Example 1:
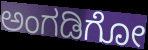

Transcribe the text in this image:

ಅಂಗಡಿಗೋ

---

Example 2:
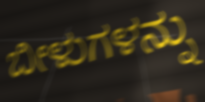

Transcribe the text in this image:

ಬೀಳುಗಳನ್ನು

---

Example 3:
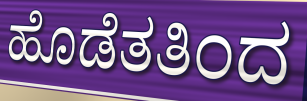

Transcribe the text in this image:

ಹೊಡೆತತಿಂದ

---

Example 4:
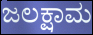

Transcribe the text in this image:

ಜಲಕ್ಷಾಮ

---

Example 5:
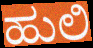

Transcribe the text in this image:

ಹುಲಿ